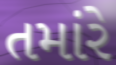
તમાંરે